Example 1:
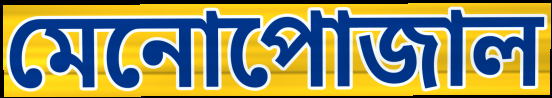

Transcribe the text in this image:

মেনোপোজাল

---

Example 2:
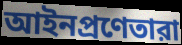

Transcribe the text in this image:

আইনপ্রণেতারা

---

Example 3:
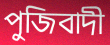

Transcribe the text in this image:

পুজিবাদী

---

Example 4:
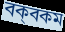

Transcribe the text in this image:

বক্‌বকম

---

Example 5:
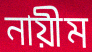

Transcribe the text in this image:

নায়ীম